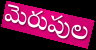
మెరుపుల